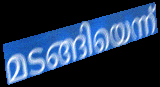
മടങ്ങിയെന്ന്